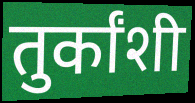
तुर्कांशी